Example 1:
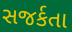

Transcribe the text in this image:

સજર્કતા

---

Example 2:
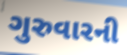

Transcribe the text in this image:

ગુરુવારની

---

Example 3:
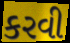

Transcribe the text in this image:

કરવી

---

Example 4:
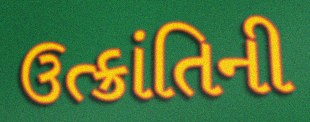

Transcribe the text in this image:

ઉત્ક્રાંતિની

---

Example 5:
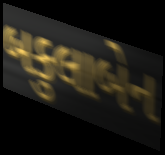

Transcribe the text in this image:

બકુલાબેન